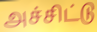
அச்சிட்டு